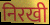
निरखी